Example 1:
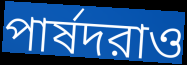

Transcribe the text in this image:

পার্ষদরাও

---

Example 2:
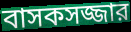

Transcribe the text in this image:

বাসকসজ্জার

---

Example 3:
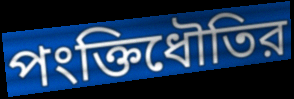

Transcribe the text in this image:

পংক্তিধৌতির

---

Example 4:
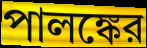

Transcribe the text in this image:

পালঙ্কের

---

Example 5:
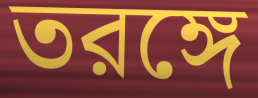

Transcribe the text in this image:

তরঙ্গে